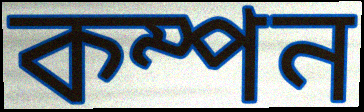
কম্পন